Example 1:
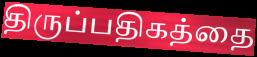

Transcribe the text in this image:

திருப்பதிகத்தை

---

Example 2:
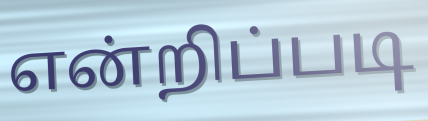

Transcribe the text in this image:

என்றிப்படி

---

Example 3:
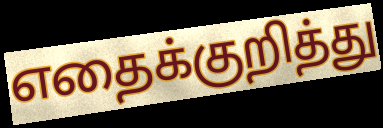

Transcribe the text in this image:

எதைக்குறித்து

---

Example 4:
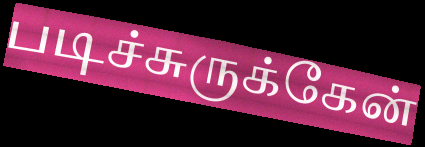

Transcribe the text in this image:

படிச்சுருக்கேன்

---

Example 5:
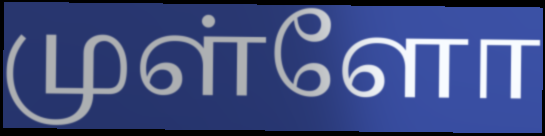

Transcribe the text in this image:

முள்ளோ